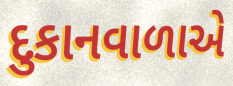
દુકાનવાળાએ